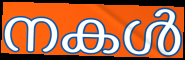
നകൾ